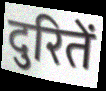
दुरितें